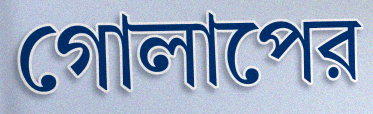
গোলাপের